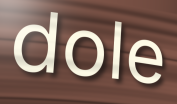
dole